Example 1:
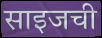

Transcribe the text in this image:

साइजची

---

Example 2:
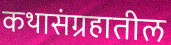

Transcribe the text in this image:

कथासंग्रहातील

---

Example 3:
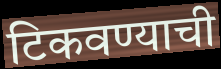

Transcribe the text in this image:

टिकवण्याची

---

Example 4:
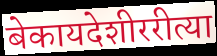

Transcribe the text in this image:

बेकायदेशीररीत्या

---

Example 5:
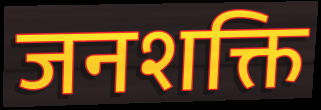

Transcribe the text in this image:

जनशक्ति